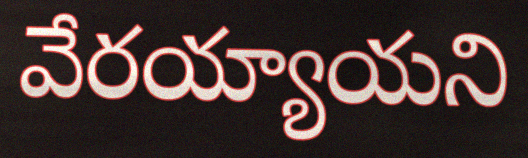
వేరయ్యాయని